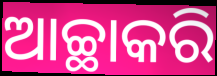
ଆଚ୍ଛାକରି